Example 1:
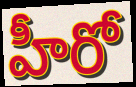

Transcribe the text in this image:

హీరో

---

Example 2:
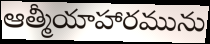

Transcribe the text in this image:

ఆత్మీయాహారమును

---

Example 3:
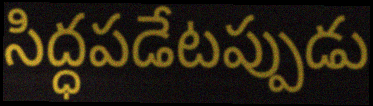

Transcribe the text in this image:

సిద్ధపడేటప్పుడు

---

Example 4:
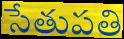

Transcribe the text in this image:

సేతుపతి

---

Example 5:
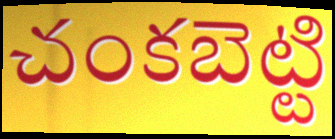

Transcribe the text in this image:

చంకబెట్టి